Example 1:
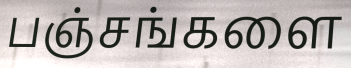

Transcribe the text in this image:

பஞ்சங்களை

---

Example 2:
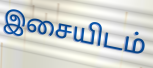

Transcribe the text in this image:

இசையிடம்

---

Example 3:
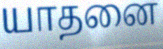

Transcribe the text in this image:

யாதனை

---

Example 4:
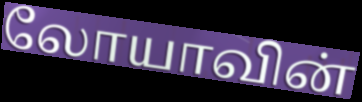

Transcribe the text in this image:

லோயாவின்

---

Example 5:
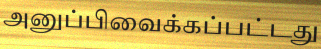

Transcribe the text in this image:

அனுப்பிவைக்கப்பட்டது